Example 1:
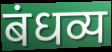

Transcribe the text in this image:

बंधव्य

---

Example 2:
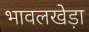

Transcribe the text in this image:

भावलखेड़ा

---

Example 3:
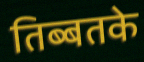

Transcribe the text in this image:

तिब्बतके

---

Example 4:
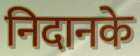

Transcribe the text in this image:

निदानके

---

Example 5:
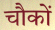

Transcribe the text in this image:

चौकों